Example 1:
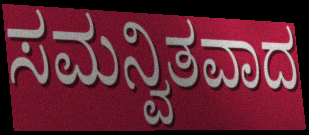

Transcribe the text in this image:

ಸಮನ್ವಿತವಾದ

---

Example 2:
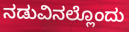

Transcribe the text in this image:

ನಡುವಿನಲ್ಲೊಂದು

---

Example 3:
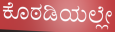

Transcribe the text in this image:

ಕೊಠಡಿಯಲ್ಲೇ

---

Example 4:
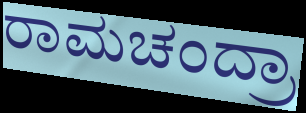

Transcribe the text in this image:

ರಾಮಚಂದ್ರಾ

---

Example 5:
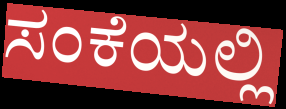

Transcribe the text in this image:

ಸಂಕೆಯಲ್ಲಿ